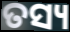
ତସ୍ୟ